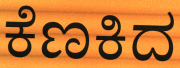
ಕೆಣಕಿದ